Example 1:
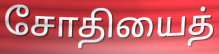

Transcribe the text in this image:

சோதியைத்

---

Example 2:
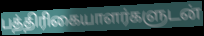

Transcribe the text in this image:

பத்திரிகையாளர்களுடன்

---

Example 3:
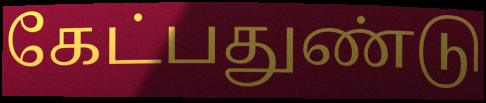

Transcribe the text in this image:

கேட்பதுண்டு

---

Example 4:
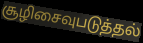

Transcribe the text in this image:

சூழிசைவுபடுத்தல்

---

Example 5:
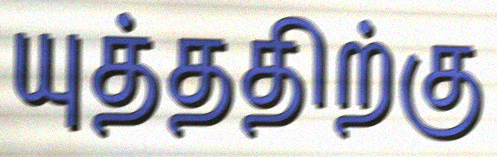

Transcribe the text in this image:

யுத்ததிற்கு